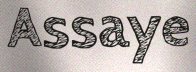
Assaye